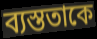
ব্যস্ততাকে